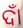
ଦାଁ